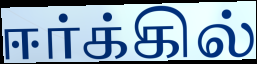
ஈர்க்கில்